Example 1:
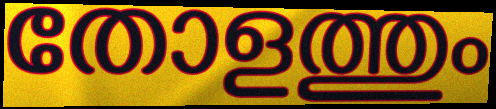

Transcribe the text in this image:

തോളത്തും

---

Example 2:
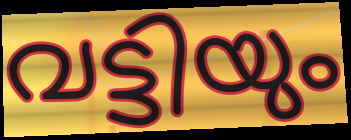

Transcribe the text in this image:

വട്ടിയും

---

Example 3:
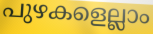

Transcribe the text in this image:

പുഴകളെല്ലാം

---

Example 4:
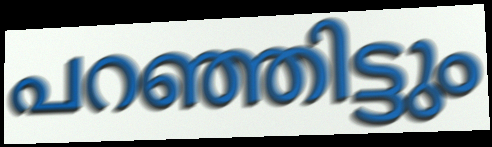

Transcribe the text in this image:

പറഞ്ഞിട്ടും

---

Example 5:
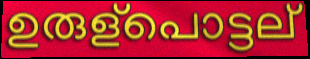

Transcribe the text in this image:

ഉരുള്പൊട്ടല്